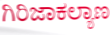
ಗಿರಿಜಾಕಲ್ಯಾಣ